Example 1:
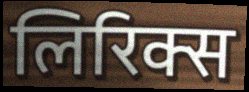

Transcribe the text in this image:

लिरिक्स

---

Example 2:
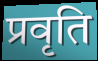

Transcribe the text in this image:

प्रवृति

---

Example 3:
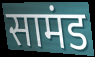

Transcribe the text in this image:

सामंड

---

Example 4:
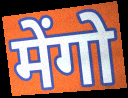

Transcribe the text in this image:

मेंगो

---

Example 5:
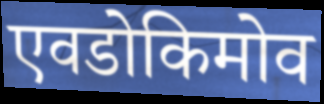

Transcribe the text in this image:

एवडोकिमोव